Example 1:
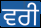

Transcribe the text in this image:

ਵਰੀ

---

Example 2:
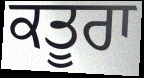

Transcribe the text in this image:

ਕਤੂਰਾ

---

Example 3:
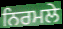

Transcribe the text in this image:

ਨਿਰਮਲੇ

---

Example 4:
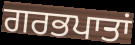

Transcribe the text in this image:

ਗਰਭਪਾਤਾਂ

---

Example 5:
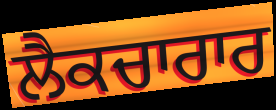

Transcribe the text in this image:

ਲੈਕਚਾਰਾਰ